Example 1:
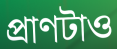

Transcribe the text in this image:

প্রাণটাও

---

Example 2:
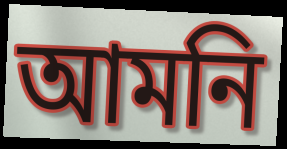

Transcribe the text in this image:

আমনি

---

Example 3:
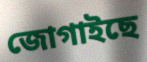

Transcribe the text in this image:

জোগাইছে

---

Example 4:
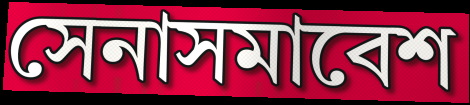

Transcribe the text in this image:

সেনাসমাবেশ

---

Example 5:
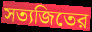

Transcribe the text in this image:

সত্যজিতের